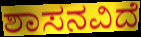
ಶಾಸನವಿದೆ